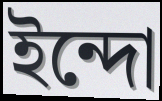
ইন্দো